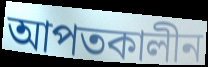
আপতকালীন